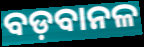
ବଡ଼ବାନଳ